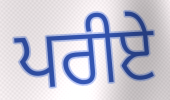
ਪਰੀਏ